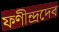
ফণীন্দ্রদেব